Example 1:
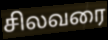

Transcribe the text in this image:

சிலவரை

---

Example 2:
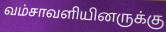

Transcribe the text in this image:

வம்சாவளியினருக்கு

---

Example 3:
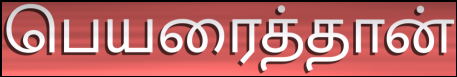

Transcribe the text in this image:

பெயரைத்தான்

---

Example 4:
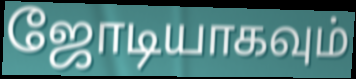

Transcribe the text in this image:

ஜோடியாகவும்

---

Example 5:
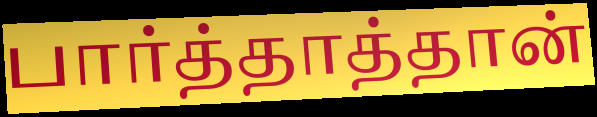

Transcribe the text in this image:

பார்த்தாத்தான்